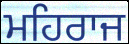
ਮਹਿਰਾਜ